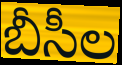
బీసీల